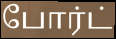
போர்ட்